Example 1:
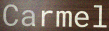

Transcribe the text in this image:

Carmel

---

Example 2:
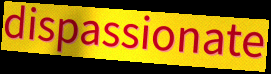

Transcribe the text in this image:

dispassionate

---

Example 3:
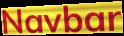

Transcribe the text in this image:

Navbar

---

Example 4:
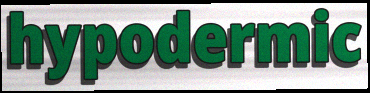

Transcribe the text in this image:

hypodermic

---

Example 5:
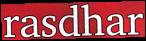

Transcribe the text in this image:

rasdhar